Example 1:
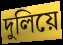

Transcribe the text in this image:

দুলিয়ে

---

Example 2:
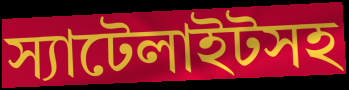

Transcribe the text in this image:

স্যাটেলাইটসহ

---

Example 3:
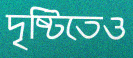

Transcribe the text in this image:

দৃষ্টিতেও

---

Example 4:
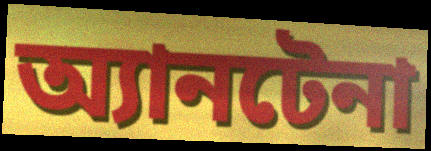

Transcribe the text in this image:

অ্যানটেনা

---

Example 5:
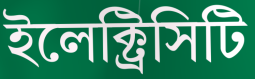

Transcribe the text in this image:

ইলেক্ট্রিসিটি